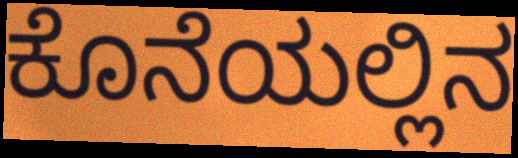
ಕೊನೆಯಲ್ಲಿನ